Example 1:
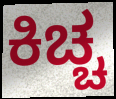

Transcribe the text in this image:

ಕಿಚ್ಚ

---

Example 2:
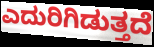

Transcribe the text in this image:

ಎದುರಿಗಿಡುತ್ತದೆ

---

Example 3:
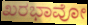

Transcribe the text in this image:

ಖರಭಾವೋ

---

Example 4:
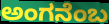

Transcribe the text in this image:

ಅಂಗನೆಂಬ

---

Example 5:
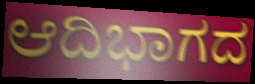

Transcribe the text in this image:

ಆದಿಭಾಗದ